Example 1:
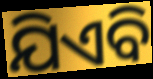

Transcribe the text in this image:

ଯିଏବି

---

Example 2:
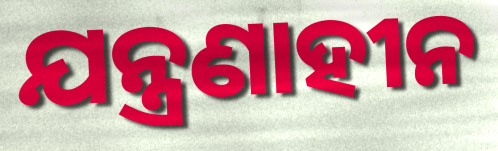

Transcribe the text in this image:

ଯନ୍ତ୍ରଣାହୀନ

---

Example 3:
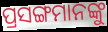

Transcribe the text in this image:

ପ୍ରସଙ୍ଗମାନଙ୍କୁ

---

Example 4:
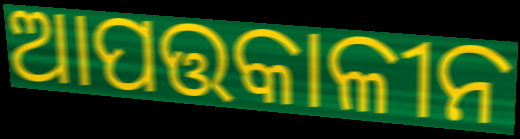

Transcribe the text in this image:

ଆପତ୍ତକାଳୀନ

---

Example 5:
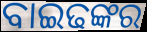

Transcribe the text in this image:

ବାଇଢଙ୍କର